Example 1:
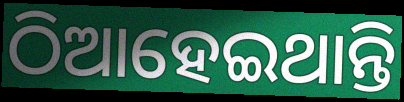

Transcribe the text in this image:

ଠିଆହେଇଥାନ୍ତି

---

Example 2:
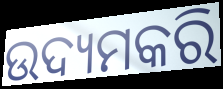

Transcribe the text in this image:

ଉଦ୍ୟମକରି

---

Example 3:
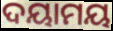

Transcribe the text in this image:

ଦୟାମୟ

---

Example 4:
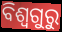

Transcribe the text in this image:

ବିଶ୍ୱଗୁରୁ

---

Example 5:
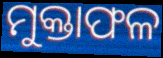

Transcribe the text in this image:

ମୁକ୍ତାଫଳ